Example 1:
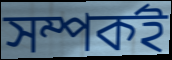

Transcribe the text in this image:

সম্পর্কই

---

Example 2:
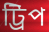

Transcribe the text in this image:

ট্রিপ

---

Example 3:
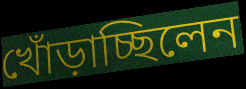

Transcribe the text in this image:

খোঁড়াচ্ছিলেন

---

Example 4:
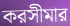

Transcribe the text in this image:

করসীমার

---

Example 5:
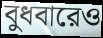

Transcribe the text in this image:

বুধবারেও